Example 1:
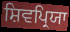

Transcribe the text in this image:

ਸ਼ਿਵਪ੍ਰਿਯਾ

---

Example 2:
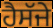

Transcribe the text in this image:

ਹੈਸੱਜੇ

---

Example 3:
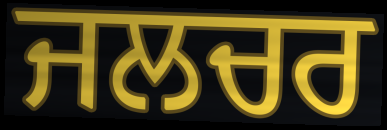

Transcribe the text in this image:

ਜਲਚਰ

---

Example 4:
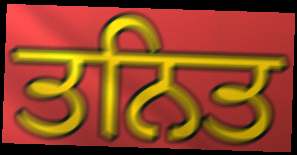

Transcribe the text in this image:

ਤਨਿਤ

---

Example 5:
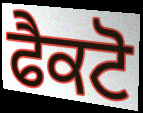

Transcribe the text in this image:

ਫੈਕਟੋ